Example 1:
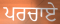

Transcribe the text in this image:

ਪਰਚਾਏ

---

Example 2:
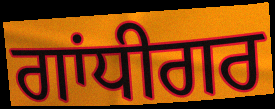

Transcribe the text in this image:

ਗਾਂਧੀਗਰ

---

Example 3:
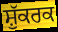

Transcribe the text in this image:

ਸ਼ੁੱਕਰਕ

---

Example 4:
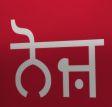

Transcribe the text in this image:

ਨੋਜ਼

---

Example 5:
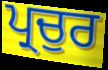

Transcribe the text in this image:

ਪ੍ਰਚੁਰ